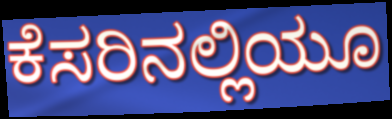
ಕೆಸರಿನಲ್ಲಿಯೂ